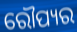
ରୌପ୍ୟର